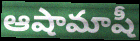
ఆషామాషీ